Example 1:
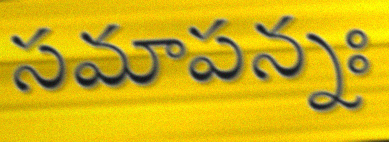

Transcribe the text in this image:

సమాపన్నః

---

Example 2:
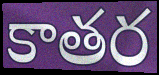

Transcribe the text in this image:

కాతర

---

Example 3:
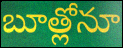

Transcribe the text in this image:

బూత్లోనూ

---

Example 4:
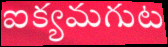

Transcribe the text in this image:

ఐక్యమగుట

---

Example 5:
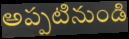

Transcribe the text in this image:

అప్పటినుండి